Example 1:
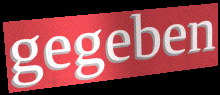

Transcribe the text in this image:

gegeben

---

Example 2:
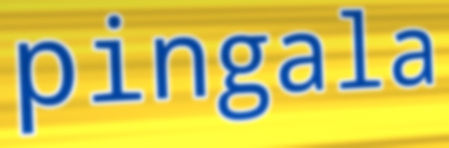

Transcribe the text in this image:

pingala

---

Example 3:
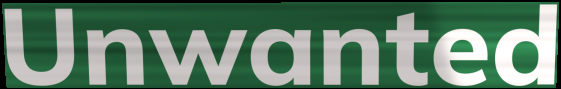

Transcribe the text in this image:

Unwanted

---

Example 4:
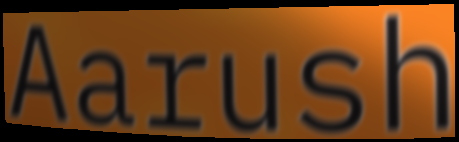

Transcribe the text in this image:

Aarush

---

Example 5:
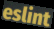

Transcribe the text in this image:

eslint